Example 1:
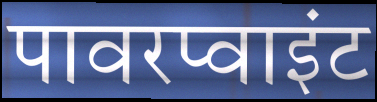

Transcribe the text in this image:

पावरप्वाइंट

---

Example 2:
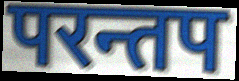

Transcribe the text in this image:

परन्तप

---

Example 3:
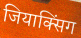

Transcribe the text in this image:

जियाक्सिंग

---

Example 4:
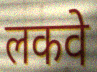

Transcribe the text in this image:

लकवे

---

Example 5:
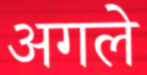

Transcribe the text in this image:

अगले